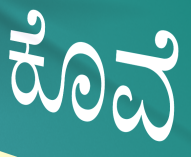
ಕೊವೆ